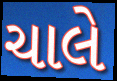
ચાલે